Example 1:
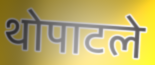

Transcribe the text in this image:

थोपाटले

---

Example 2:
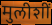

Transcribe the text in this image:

मुलीशीं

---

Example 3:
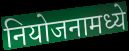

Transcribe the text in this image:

नियोजनामध्ये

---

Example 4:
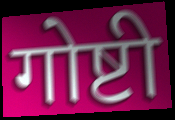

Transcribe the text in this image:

गोष्टी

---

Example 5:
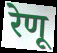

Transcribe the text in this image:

रेणू